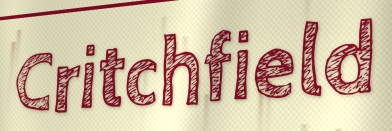
Critchfield